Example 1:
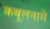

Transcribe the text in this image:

कबूलनामे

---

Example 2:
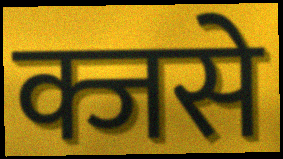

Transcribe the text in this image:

क्जसे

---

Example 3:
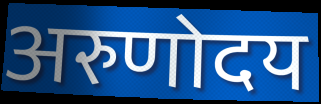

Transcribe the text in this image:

अरुणोदय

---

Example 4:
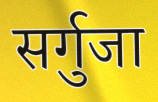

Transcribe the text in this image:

सर्गुजा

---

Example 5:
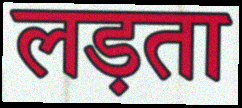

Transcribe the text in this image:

लड़ता